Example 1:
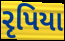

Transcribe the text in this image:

રૃપિયા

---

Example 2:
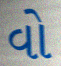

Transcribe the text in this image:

વો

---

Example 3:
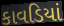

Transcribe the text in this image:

કાવડિયાં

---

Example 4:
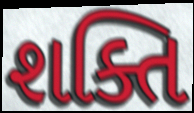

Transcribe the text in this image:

શક્તિ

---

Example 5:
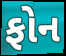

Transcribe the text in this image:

ફોન